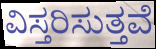
ವಿಸ್ತರಿಸುತ್ತವೆ